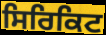
ਸਿਰਿਕਿਟ